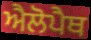
ਐਲੋਪੈਥ